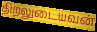
திறலுடையவன்